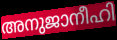
അനുജാനീഹി